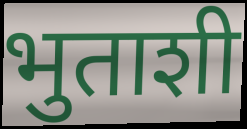
भुताशी